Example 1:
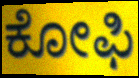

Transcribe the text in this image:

ಕೋಫಿ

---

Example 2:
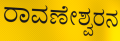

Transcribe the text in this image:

ರಾವಣೇಶ್ವರನ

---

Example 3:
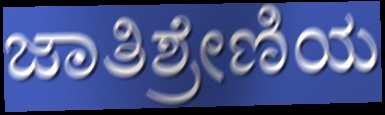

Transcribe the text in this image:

ಜಾತಿಶ್ರೇಣಿಯ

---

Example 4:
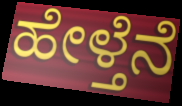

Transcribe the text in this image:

ಹೇಳ್ತೆನೆ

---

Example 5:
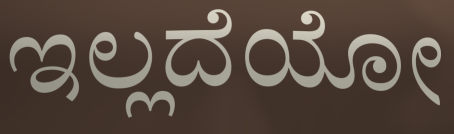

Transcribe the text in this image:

ಇಲ್ಲದೆಯೋ